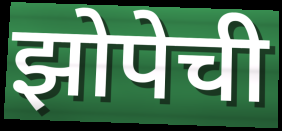
झोपेची